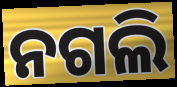
ନଗଲି